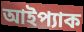
আইপ্যাক